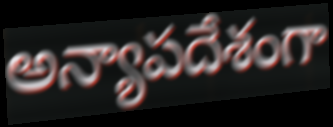
అన్యాపదేశంగా